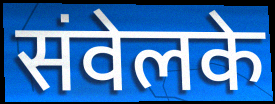
संवेलके